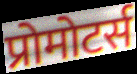
प्रोमोटर्स